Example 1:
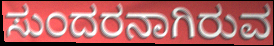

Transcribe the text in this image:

ಸುಂದರನಾಗಿರುವ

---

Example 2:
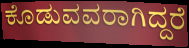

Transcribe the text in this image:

ಕೊಡುವವರಾಗಿದ್ದರೆ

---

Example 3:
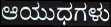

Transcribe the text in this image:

ಆಯುಧಗಳು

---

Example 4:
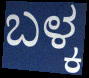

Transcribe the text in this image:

ಬಳ್ಕ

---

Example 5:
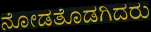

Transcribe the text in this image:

ನೋಡತೊಡಗಿದರು